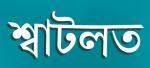
শ্বাটলত